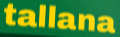
tallana